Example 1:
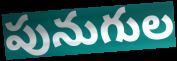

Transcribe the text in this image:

పునుగుల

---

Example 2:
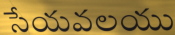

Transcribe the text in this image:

సేయవలయు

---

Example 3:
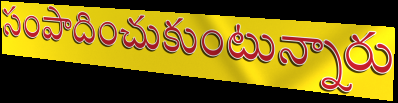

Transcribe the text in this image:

సంపాదించుకుంటున్నారు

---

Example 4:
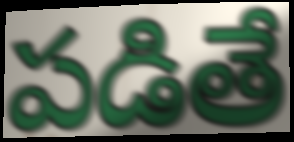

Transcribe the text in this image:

పడితే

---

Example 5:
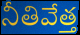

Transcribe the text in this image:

నీతివేత్త